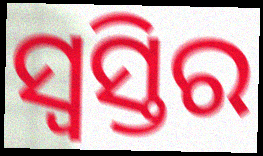
ସ୍ଵସ୍ତିର